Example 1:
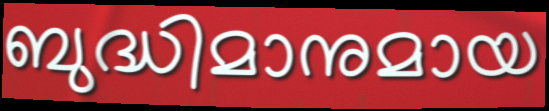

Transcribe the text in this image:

ബുദ്ധിമാനുമായ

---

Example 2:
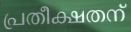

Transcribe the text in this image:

പ്രതീക്ഷതന്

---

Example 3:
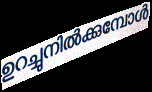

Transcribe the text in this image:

ഉറച്ചുനിൽക്കുമ്പോൾ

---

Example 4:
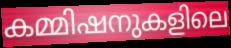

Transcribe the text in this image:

കമ്മിഷനുകളിലെ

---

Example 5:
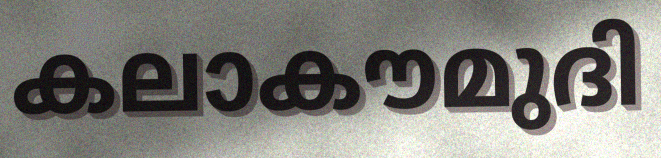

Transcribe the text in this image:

കലാകൗമുദി